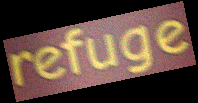
refuge